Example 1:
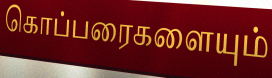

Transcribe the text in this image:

கொப்பரைகளையும்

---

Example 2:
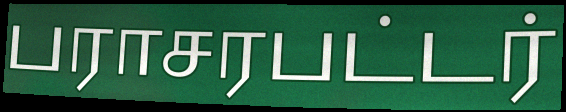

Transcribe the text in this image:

பராசரபட்டர்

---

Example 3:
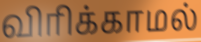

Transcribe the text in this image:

விரிக்காமல்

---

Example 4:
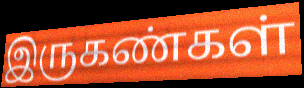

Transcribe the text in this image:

இருகண்கள்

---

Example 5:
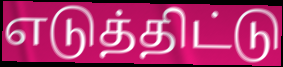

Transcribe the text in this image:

எடுத்திட்டு